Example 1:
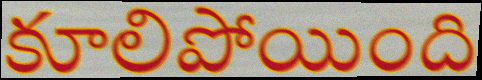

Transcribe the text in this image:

కూలిపోయింది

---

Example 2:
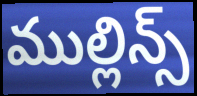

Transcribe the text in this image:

ముల్లిన్స్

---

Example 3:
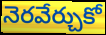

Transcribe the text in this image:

నెరవేర్చుకో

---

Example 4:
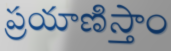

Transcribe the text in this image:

ప్రయాణిస్తాం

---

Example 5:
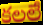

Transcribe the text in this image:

కలలే